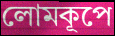
লোমকূপে